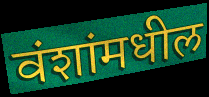
वंशांमधील